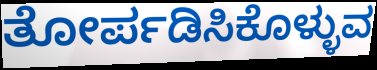
ತೋರ್ಪಡಿಸಿಕೊಳ್ಳುವ